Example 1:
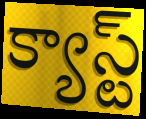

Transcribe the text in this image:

క్యాస్ట్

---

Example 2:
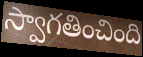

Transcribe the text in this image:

స్వాగతించింది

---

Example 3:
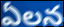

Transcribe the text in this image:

ఏలన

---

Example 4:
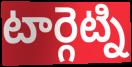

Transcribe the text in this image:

టార్గెట్ని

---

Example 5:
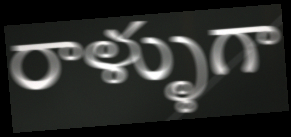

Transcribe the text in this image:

రాళ్ళుగా